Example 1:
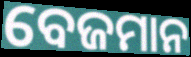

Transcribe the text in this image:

ବେଜମାନ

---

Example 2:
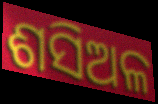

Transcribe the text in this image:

ଶସିଅଳ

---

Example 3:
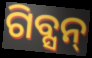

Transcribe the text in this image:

ଗିବ୍ସନ୍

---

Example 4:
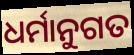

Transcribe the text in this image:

ଧର୍ମାନୁଗତ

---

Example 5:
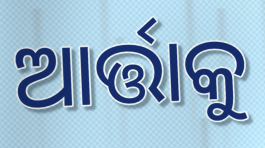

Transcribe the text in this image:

ଆର୍ତ୍ତାକୁ